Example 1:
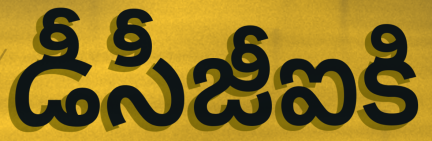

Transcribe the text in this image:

డీసీజీఐకి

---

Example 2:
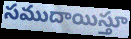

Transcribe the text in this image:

సముదాయిస్తూ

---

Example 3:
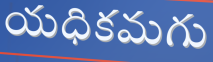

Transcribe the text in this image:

యధికమగు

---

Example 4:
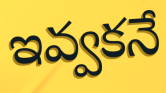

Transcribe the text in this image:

ఇవ్వకనే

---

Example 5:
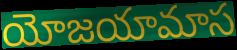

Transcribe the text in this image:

యోజయామాస